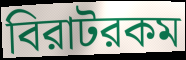
বিরাটরকম